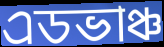
এডভাঞ্চ